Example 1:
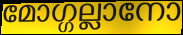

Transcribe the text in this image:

മോഗ്ഗല്ലാനോ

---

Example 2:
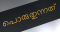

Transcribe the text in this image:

പൊരുതുന്നത്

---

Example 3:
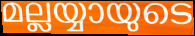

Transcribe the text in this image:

മല്ലയ്യായുടെ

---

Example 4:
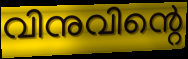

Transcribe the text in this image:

വിനുവിന്റെ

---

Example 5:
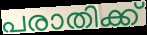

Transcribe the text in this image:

പരാതിക്ക്